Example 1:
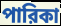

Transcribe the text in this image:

পারিকা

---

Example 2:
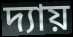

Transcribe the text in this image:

দ্যায়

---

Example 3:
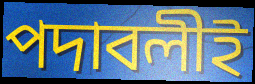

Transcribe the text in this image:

পদাবলীই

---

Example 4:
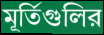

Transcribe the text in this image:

মূর্তিগুলির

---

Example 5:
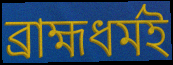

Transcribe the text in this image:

ব্রাহ্মধর্মই